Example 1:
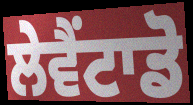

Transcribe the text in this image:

ਲੇਵੈਂਟਾਡੋ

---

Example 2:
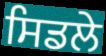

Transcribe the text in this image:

ਸਿਡਲੇ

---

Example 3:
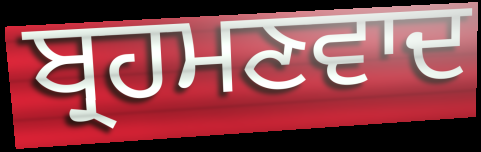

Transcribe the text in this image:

ਬ੍ਰਹਮਣਵਾਦ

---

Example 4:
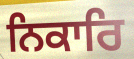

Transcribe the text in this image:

ਨਿਕਾਰਿ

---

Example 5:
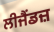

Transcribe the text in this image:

ਲੀਜੈਂਡਜ਼